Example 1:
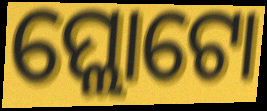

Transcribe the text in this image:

ପ୍ଲୋଟୋ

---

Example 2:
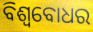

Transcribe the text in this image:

ବିଶ୍ବବୋଧର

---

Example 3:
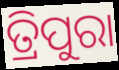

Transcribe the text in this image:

ତ୍ରିପୁରା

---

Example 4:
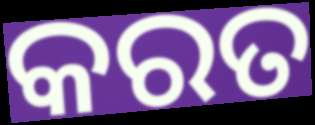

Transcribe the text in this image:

କରତ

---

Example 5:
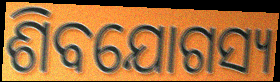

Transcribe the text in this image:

ଶିବଯୋଗସ୍ୟ